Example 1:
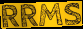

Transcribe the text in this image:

RRMS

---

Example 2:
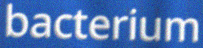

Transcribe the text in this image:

bacterium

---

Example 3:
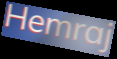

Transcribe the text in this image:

Hemraj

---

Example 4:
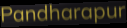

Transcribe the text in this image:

Pandharapur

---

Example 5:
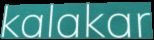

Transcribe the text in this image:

kalakar